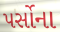
પર્સોના